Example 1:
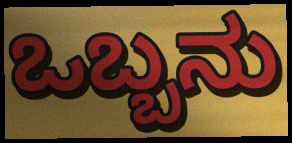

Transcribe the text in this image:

ಒಬ್ಬನು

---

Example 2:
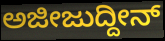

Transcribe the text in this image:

ಅಜೀಜುದ್ದೀನ್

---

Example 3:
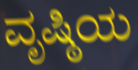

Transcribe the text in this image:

ವೃಷ್ಠಿಯ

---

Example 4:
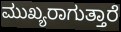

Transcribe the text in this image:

ಮುಖ್ಯರಾಗುತ್ತಾರೆ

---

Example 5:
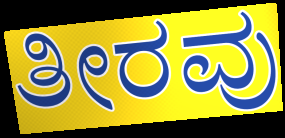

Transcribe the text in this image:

ತೀರವು